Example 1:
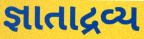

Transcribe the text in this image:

જ્ઞાતાદ્રવ્ય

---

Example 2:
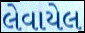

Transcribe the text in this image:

લેવાયેલ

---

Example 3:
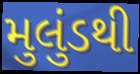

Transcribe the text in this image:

મુલુંડથી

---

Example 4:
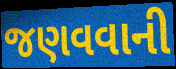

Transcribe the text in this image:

જણવવાની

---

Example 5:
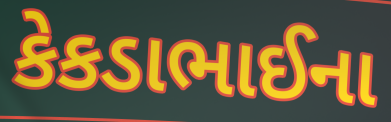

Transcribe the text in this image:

કેકડાભાઈના